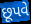
છૂપવે